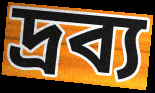
দ্রব্য